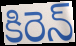
కిరెన్